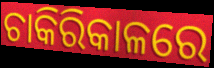
ଚାକିରିକାଳରେ